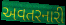
અવતરનારી